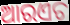
ଆରଏଚ